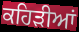
ਕਹਿੜੀਆਂ